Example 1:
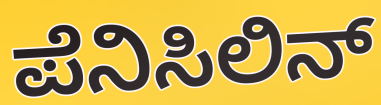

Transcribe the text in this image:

ಪೆನಿಸಿಲಿನ್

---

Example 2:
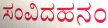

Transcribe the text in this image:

ಸಂವಿದಹನಂ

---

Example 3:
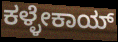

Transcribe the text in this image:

ಕಳ್ಳೇಕಾಯ್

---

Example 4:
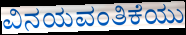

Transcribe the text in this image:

ವಿನಯವಂತಿಕೆಯು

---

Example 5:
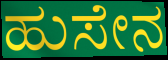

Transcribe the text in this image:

ಹುಸೇನ